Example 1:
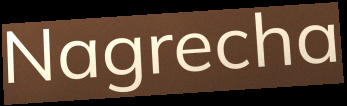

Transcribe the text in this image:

Nagrecha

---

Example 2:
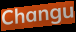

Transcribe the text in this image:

Changu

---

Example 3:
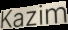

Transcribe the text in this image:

Kazim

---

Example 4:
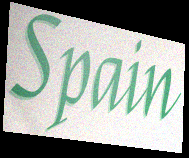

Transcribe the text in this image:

Spain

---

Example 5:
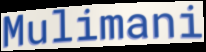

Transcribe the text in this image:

Mulimani